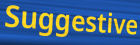
Suggestive